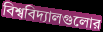
বিশ্ববিদ্যালগুলোর